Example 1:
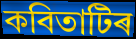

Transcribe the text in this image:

কবিতাটিৰ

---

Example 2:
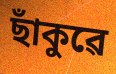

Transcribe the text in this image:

ছাঁকুৱে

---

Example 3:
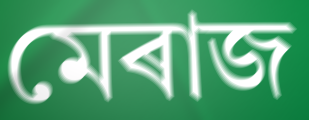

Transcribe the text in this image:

মেৰাজ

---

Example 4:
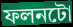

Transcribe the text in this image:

ফলনটো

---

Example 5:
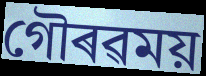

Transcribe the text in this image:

গৌৰৱময়